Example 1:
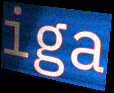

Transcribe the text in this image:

iga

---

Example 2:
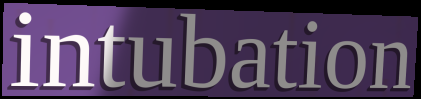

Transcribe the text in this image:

intubation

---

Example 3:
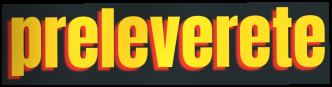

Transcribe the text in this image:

preleverete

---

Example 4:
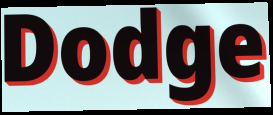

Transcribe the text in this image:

Dodge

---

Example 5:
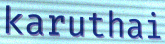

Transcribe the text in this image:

karuthai